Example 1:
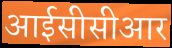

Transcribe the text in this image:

आईसीसीआर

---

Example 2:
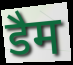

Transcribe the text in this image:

डैम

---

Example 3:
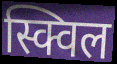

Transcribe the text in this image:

स्क्विल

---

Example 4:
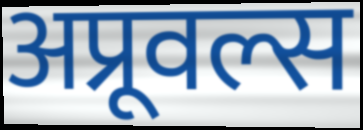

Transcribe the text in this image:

अप्रूवल्स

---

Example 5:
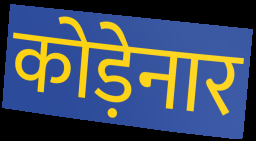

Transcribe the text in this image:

कोड़ेनार